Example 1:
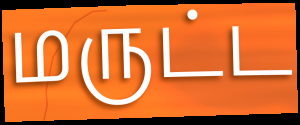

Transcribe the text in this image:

மருட்ட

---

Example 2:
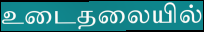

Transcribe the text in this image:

உடைதலையில்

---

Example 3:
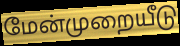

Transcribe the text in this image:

மேன்முறையீடு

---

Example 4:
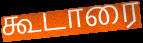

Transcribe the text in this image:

கூடாரை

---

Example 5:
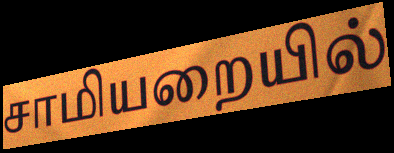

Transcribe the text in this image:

சாமியறையில்